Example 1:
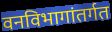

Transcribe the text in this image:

वनविभागांतर्गत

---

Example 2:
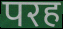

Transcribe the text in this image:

परह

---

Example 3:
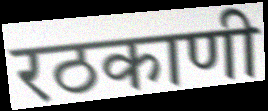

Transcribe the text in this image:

रठकाणी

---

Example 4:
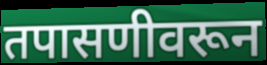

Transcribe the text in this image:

तपासणीवरून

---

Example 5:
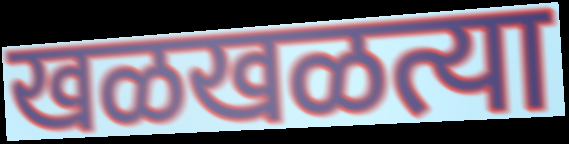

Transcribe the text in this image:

खळखळत्या